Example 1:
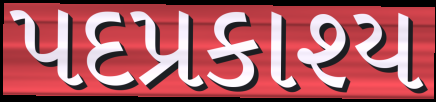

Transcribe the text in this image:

પદપ્રકાશ્ય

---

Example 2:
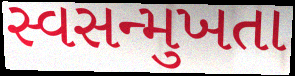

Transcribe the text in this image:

સ્વસન્મુખતા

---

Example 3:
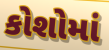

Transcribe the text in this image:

કોશોમાં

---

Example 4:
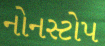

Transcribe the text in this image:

નોનસ્ટોપ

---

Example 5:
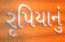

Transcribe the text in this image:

રૃપિયાનું